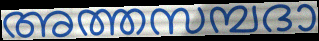
അത്തസമ്പദാ